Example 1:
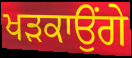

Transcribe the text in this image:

ਖੜਕਾਉਂਗੇ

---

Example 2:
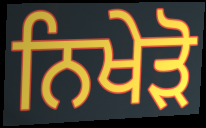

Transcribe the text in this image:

ਨਿਖੇੜੋ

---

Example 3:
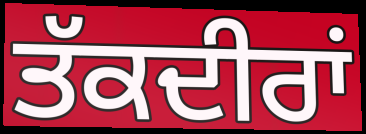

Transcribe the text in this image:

ਤੱਕਦੀਰਾਂ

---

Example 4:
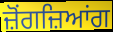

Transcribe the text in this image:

ਜ਼ੋਂਗਜ਼ਿਆਂਗ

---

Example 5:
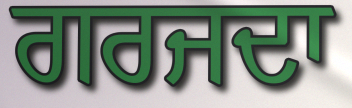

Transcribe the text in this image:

ਗਰਜਦਾ